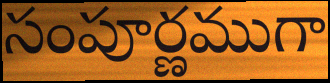
సంపూర్ణముగా